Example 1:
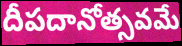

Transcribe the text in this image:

దీపదానోత్సవమే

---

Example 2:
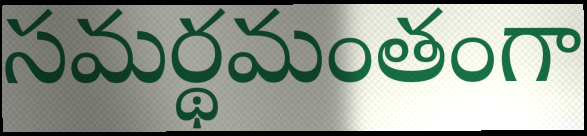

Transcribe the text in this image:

సమర్థమంతంగా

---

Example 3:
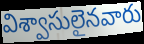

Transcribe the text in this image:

విశ్వాసులైనవారు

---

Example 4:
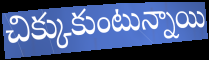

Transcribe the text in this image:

చిక్కుకుంటున్నాయి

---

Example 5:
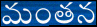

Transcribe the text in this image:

మంతన